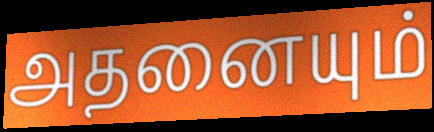
அதனையும்